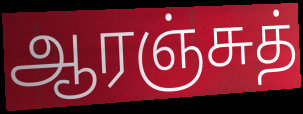
ஆரஞ்சுத்